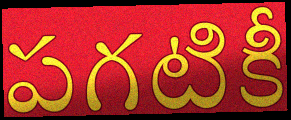
పగటికీ